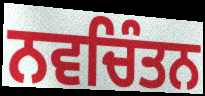
ਨਵਚਿੰਤਨ